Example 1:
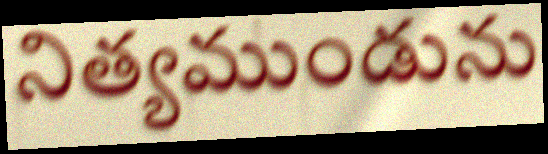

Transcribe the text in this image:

నిత్యముండును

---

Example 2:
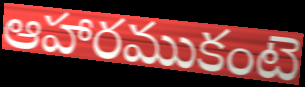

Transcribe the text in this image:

ఆహారముకంటె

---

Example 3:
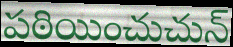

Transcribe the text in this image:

పఠియించుచున్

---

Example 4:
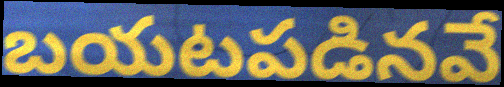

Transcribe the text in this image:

బయటపడినవే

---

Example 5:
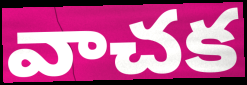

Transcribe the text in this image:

వాచక